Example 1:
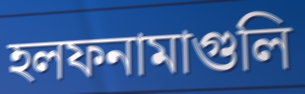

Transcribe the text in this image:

হলফনামাগুলি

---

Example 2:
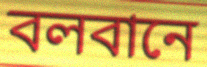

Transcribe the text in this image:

বলবানে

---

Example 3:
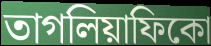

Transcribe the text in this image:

তাগলিয়াফিকো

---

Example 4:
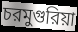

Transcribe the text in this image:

চরমুগুরিয়া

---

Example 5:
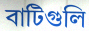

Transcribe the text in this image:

বাটিগুলি